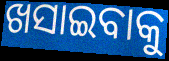
ଖସାଇବାକୁ